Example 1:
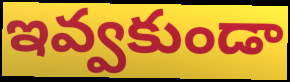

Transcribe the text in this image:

ఇవ్వకుండా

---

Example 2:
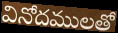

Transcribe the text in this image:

వినోదములతో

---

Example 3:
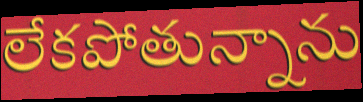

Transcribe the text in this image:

లేకపోతున్నాను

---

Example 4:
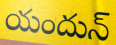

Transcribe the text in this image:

యందున్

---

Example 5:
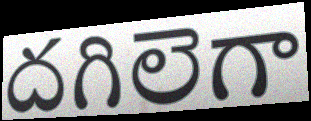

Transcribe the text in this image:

దగిలెగా